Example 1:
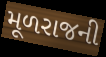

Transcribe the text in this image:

મૂળરાજની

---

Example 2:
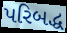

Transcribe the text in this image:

પરિબદ્ધ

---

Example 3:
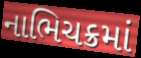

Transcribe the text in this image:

નાભિચક્રમાં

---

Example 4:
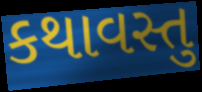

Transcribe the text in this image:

કથાવસ્તુ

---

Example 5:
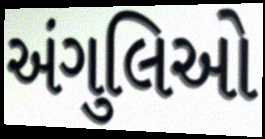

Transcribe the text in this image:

અંગુલિઓ